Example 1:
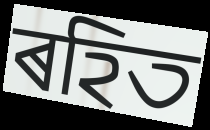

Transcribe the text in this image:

ৰহিত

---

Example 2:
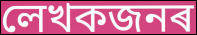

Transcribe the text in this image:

লেখকজনৰ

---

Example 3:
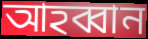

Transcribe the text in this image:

আহব্বান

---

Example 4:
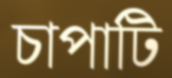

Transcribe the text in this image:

চাপাটি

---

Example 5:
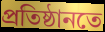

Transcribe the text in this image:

প্ৰতিষ্ঠানতে